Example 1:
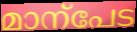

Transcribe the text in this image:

മാന്പേട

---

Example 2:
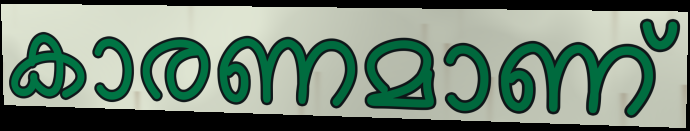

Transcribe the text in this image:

കാരണമാണ്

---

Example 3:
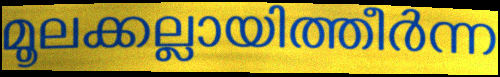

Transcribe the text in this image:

മൂലക്കല്ലായിത്തീർന്ന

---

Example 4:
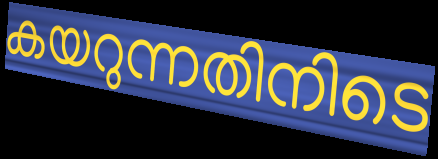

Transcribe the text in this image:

കയറുന്നതിനിടെ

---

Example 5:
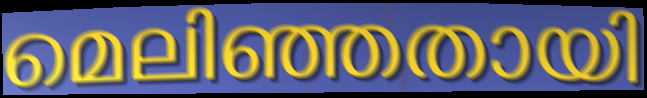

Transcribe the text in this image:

മെലിഞ്ഞതായി